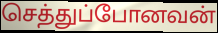
செத்துப்போனவன்